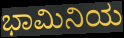
ಭಾಮಿನಿಯ